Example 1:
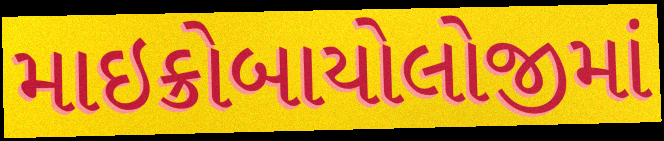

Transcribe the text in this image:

માઇક્રોબાયોલોજીમાં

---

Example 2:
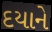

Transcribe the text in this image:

દયાને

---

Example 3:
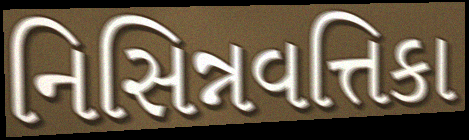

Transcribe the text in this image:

નિસિન્નવત્તિકા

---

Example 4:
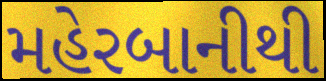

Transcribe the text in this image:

મહેરબાનીથી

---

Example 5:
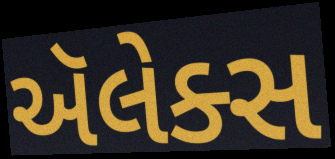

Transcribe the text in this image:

ઍલેક્સ